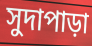
সুদাপাড়া